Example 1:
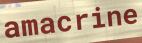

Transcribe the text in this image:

amacrine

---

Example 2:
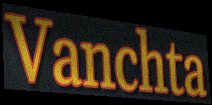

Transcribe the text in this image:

Vanchta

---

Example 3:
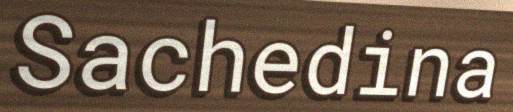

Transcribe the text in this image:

Sachedina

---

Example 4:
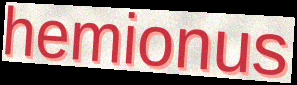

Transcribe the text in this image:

hemionus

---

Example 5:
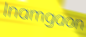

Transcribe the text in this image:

Inamgaon